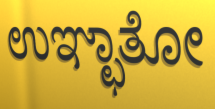
ಉಞ್ಛಾತೋ